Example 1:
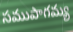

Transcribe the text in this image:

సముపాగమ్య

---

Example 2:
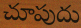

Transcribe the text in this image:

చూపుదు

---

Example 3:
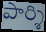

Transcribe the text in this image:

పార్శి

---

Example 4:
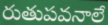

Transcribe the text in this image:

రుతుపవనాలే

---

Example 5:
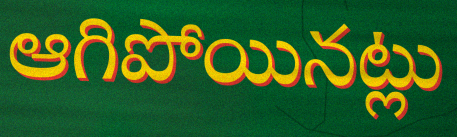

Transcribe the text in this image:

ఆగిపోయినట్లు